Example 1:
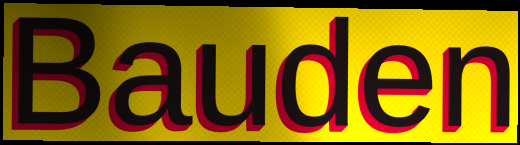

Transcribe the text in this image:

Bauden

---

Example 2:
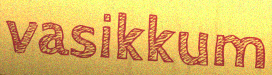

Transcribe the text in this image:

vasikkum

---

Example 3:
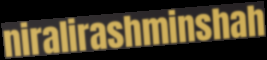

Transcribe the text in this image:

niralirashminshah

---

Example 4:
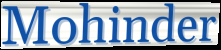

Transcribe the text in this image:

Mohinder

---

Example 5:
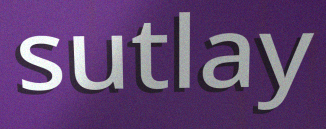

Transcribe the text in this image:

sutlay